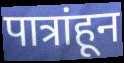
पात्रांहून